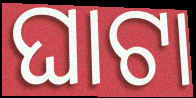
ଘାଟା